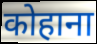
कोहाना